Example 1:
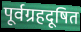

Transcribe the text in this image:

पूर्वग्रहदूषित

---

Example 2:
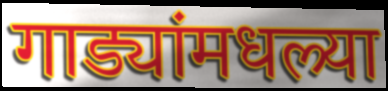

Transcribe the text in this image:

गाड्यांमधल्या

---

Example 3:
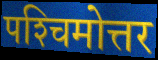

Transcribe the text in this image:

पश्चिमोत्तर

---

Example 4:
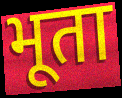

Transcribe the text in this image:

भूता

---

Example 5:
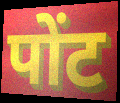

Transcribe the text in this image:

पोंट